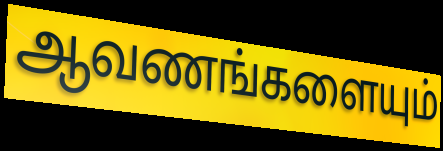
ஆவணங்களையும்